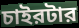
চাইরটার